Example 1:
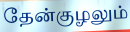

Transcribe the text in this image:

தேன்குழலும்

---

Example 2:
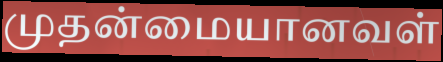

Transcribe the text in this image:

முதன்மையானவள்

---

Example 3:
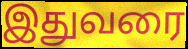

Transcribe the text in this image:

இதுவரை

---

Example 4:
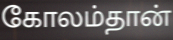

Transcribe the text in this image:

கோலம்தான்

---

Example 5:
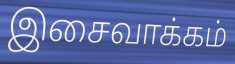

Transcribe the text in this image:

இசைவாக்கம்